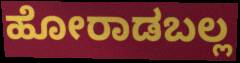
ಹೋರಾಡಬಲ್ಲ